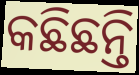
କଛିଛନ୍ତି